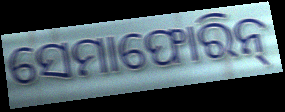
ସେମାଫୋରିନ୍